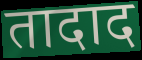
तादाद